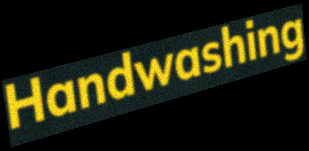
Handwashing